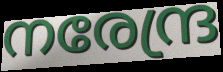
നരേന്ദ്ര